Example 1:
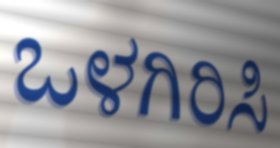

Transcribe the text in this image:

ಒಳಗಿರಿಸಿ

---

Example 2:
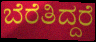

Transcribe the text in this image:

ಬೆರೆತಿದ್ದರೆ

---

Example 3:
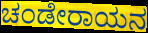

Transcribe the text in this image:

ಚಂಡೇರಾಯನ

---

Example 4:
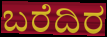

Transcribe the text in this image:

ಬರೆದಿರ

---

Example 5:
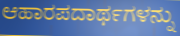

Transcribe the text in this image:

ಆಹಾರಪದಾರ್ಥಗಳನ್ನು